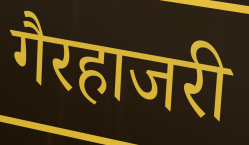
गैरहाजरी